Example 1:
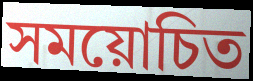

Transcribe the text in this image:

সময়োচিত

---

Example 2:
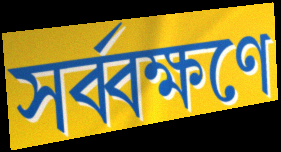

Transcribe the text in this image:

সর্ব্বক্ষণে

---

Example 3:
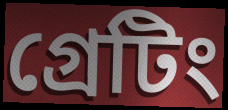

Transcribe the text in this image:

গ্রেটিং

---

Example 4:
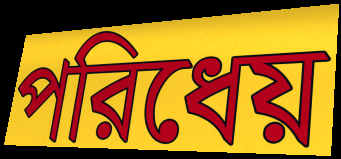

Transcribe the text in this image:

পরিধেয়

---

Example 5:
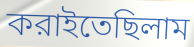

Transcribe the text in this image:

করাইতেছিলাম